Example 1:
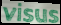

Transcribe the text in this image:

visus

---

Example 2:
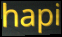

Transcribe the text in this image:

hapi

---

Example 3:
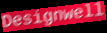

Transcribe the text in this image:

Designwell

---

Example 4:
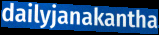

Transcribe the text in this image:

dailyjanakantha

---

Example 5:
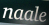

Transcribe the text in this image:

naale